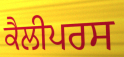
ਕੈਲੀਪਰਸ